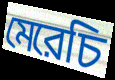
মেরেচি